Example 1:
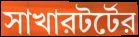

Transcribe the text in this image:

সাখারটর্টের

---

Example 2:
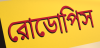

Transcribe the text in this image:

রোডোপিস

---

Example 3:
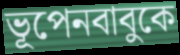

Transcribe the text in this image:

ভূপেনবাবুকে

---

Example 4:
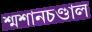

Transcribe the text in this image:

শ্মশানচণ্ডাল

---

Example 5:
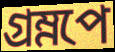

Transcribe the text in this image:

গ্রম্নপে